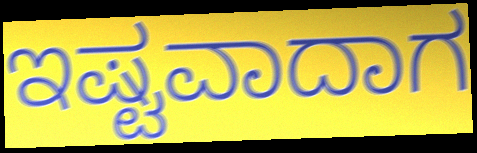
ಇಷ್ಟವಾದಾಗ